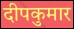
दीपकुमार